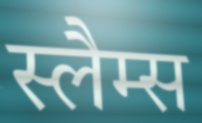
स्लैम्स